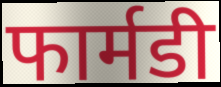
फार्मडी